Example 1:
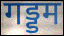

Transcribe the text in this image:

गड्डम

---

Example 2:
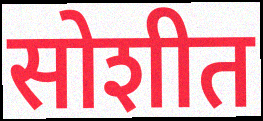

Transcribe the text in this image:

सोशीत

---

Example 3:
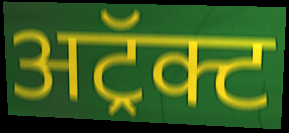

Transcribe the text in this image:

अट्रॅक्ट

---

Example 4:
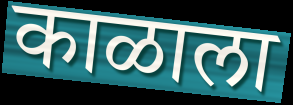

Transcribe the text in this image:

काळाला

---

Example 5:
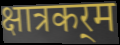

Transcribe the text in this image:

क्षात्रकर्म